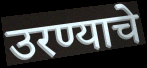
उरण्याचे